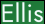
Ellis